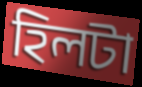
হিলটা